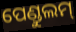
ପେଣ୍ଡୁଲମ୍